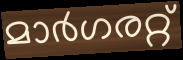
മാർഗരറ്റ്